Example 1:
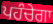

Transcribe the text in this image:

ਪਹੰਚੇਗਾ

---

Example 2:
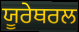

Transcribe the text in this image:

ਯੂਰੇਥਰਲ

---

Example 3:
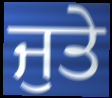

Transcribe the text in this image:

ਜੁਤੇ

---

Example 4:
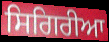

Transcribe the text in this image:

ਸਿਗਿਰੀਆ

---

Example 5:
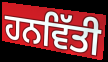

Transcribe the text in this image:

ਹਨਵਿੱਤੀ